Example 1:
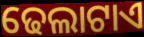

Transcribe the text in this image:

ଢେଲାଟାଏ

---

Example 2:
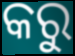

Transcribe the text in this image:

କରୁ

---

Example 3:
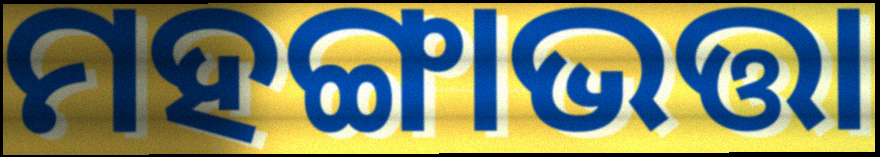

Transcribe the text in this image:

ମହଙ୍ଗାଭତ୍ତା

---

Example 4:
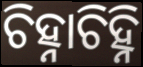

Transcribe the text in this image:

ଚିହ୍ନାଚିହ୍ନି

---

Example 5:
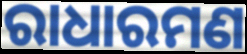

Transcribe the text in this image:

ରାଧାରମଣ